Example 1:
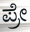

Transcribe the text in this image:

ಪ್ರೇ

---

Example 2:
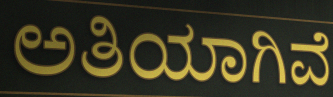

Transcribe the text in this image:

ಅತಿಯಾಗಿವೆ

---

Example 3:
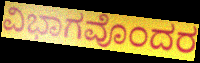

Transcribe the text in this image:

ವಿಭಾಗವೊಂದರ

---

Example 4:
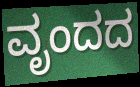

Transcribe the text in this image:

ವೃಂದದ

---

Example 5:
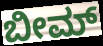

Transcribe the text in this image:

ಬೀಮ್